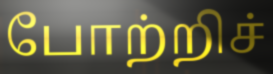
போற்றிச்